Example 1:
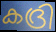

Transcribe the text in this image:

കദ്രി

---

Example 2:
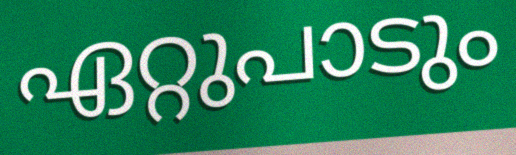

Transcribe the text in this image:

ഏറ്റുപാടും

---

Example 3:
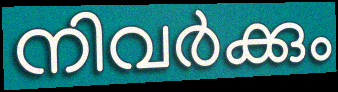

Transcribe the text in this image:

നിവർക്കും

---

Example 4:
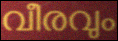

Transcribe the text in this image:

വീരവും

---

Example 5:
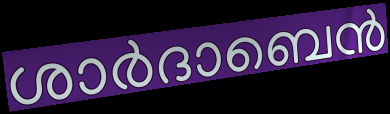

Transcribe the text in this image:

ശാർദാബെൻ